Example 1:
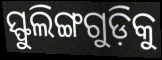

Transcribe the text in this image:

ସ୍ଫୁଲିଙ୍ଗଗୁଡ଼ିକୁ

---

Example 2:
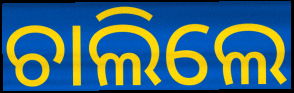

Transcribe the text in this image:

ଚାଲିଲେ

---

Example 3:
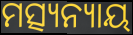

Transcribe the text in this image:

ମତ୍ସ୍ୟନ୍ୟାୟ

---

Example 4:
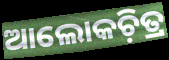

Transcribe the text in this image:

ଆଲୋକଚ଼ିତ୍ର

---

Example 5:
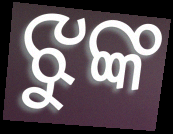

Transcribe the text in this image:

ଝୁଙ୍କ